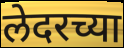
लेदरच्या